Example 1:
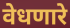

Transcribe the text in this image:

वेधणारे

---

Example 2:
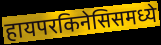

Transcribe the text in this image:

हायपरकिनेसिसमध्ये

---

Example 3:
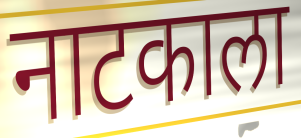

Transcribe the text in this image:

नाटकाला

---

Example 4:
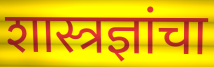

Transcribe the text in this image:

शास्त्रज्ञांचा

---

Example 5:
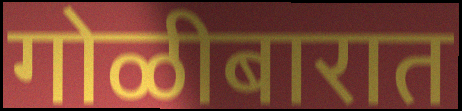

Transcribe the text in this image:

गोळीबारात